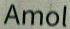
Amol